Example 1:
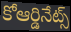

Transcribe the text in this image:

కోఆర్డినేట్స్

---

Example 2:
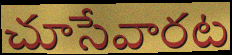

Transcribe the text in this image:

చూసేవారట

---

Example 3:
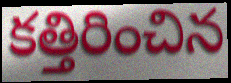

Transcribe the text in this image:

కత్తిరించిన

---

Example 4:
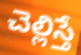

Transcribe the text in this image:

చెల్లిస్తే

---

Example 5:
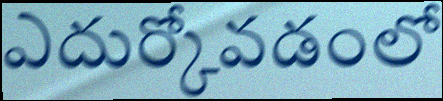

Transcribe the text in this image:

ఎదుర్కోవడంలో